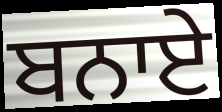
ਬਨਾਏ